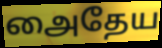
அைதேய